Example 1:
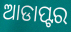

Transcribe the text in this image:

ଆଡାପ୍ଟର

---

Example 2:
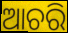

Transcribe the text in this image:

ଆଚରି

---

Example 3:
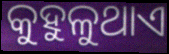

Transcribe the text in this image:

କୁହୁଳୁଥାଏ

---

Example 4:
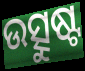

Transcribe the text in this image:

ଉତ୍ସୁଷ୍ଟ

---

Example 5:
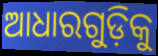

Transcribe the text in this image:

ଆଧାରଗୁଡ଼ିକୁ